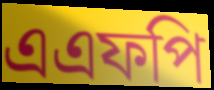
এএফপি